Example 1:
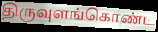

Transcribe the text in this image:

திருவுளங்கொண்ட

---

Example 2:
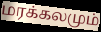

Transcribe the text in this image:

மரக்கலமும்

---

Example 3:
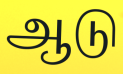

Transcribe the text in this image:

ஆடு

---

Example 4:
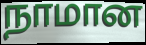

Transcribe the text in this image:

நாமான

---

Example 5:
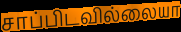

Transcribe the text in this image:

சாப்பிடவில்லையா